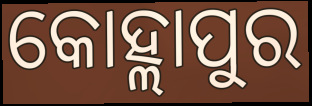
କୋହ୍ଲାପୁର